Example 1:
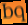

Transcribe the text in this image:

bq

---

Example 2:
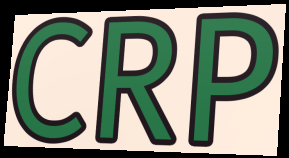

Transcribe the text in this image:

CRP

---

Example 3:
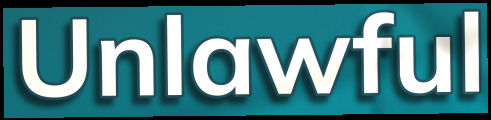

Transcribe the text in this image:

Unlawful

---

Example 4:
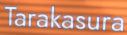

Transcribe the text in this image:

Tarakasura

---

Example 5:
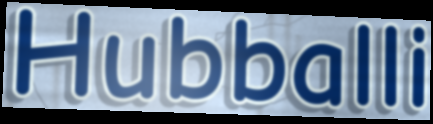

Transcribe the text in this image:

Hubballi